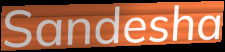
Sandesha